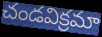
చండవిక్రమా